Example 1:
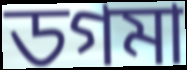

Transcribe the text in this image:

ডগমা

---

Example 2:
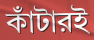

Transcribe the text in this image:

কাঁটারই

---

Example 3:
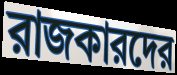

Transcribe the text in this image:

রাজকারদের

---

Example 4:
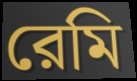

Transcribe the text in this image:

রেমি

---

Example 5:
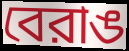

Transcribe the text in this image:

বেরাঙ